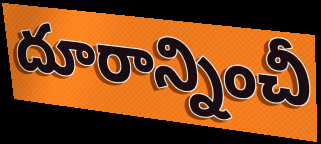
దూరాన్నించీ